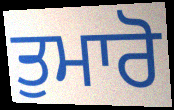
ਤੁਮਾਰੋ